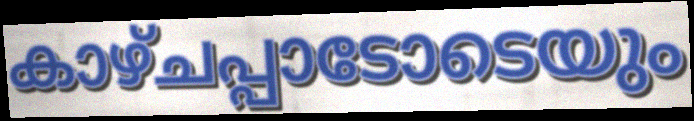
കാഴ്ചപ്പാടോടെയും